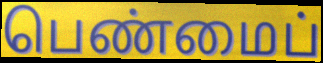
பெண்மைப்